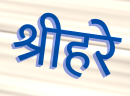
श्रीहरे